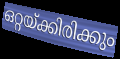
ഒറ്റയ്ക്കിരിക്കും